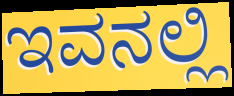
ಇವನಲ್ಲಿ